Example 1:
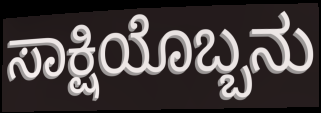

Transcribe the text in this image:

ಸಾಕ್ಷಿಯೊಬ್ಬನು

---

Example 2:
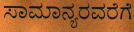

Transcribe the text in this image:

ಸಾಮಾನ್ಯರವರೆಗೆ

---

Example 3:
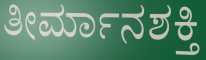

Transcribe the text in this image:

ತೀರ್ಮಾನಶಕ್ತಿ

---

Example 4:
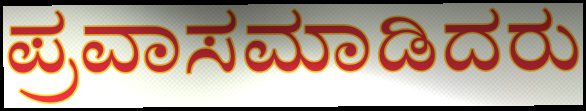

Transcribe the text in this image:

ಪ್ರವಾಸಮಾಡಿದರು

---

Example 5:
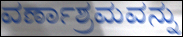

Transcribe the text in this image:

ವರ್ಣಾಶ್ರಮವನ್ನು